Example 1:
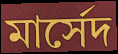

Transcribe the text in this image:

মার্সেদ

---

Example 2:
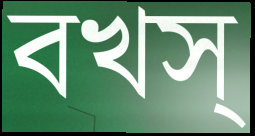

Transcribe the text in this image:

বখস্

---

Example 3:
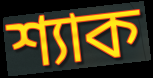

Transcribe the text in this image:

শ্যাক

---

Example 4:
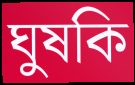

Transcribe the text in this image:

ঘুষকি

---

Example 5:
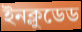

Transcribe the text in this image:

ইনক্লুডেড